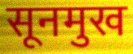
सूनमुख